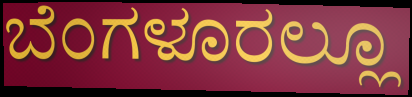
ಬೆಂಗಳೂರಲ್ಲೂ